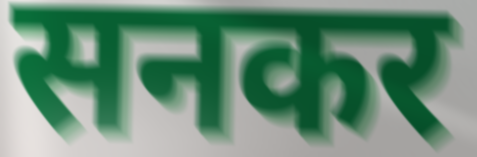
सनकर